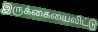
இருக்கையைவிட்டு